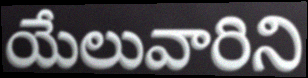
యేలువారిని